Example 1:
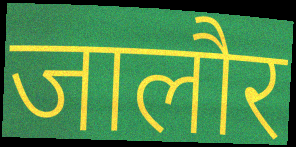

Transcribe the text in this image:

जालौर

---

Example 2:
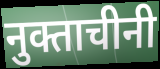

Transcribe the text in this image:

नुक्ताचीनी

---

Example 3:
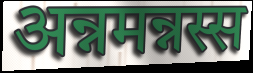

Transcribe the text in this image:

अन्नमन्नस्स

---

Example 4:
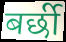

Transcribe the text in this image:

बर्छी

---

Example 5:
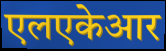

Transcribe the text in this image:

एलएकेआर